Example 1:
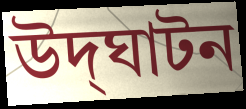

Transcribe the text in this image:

উদ্‌ঘাটন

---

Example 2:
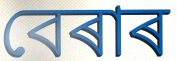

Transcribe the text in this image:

বেৰাৰ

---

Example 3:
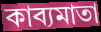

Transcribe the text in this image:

কাব্যমাতা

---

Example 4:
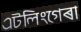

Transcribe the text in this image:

এটলিংগেৰা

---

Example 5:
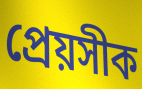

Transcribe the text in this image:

প্ৰেয়সীক